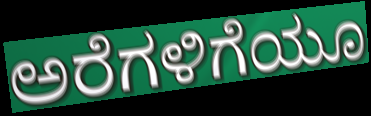
ಅರೆಗಳಿಗೆಯೂ